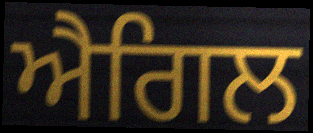
ਐਗਿਲ